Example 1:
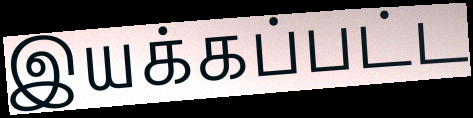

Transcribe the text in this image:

இயக்கப்பட்ட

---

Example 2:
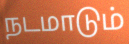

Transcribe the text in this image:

நடமாடும்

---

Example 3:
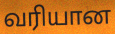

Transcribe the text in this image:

வரியான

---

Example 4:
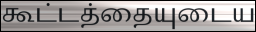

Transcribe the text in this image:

கூட்டத்தையுடைய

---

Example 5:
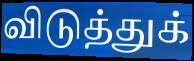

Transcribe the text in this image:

விடுத்துக்